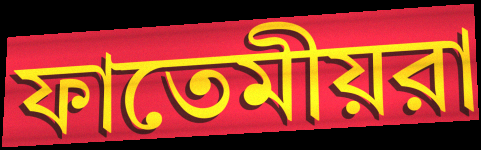
ফাতেমীয়রা